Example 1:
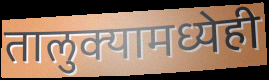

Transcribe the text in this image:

तालुक्यामध्येही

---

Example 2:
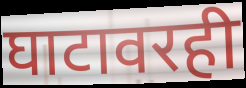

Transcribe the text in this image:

घाटावरही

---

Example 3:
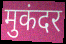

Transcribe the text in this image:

मुकंदर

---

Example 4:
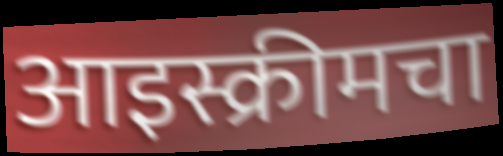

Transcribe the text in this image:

आइस्क्रीमचा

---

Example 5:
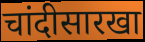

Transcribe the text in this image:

चांदीसारखा